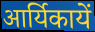
आर्यिकायें